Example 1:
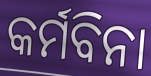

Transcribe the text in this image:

କର୍ମବିନା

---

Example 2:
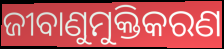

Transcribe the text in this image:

ଜୀବାଣୁମୁକ୍ତିକରଣ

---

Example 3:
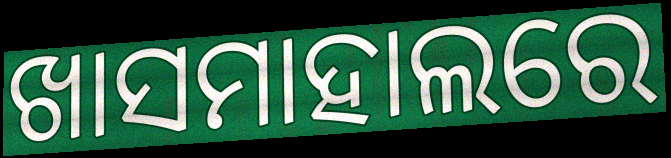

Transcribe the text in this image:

ଖାସମାହାଲରେ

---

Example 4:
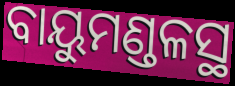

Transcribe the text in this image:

ବାୟୁମଣ୍ଡଳସ୍ଥ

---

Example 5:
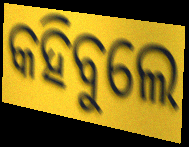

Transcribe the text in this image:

କହିବୁଲେ